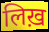
लिख़